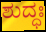
ಶುದ್ಧಃ